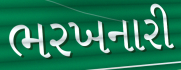
ભરખનારી